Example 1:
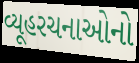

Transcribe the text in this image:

વ્યૂહરચનાઓનો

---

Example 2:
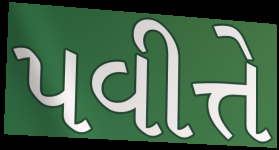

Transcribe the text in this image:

પવીત્તે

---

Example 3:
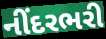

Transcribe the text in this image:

નીંદરભરી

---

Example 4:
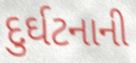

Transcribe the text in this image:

દુર્ઘટનાની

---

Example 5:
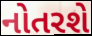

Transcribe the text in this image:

નોતરશે